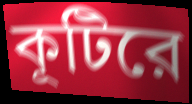
কূটিরে